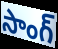
సాంగ్